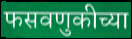
फसवणुकीच्या